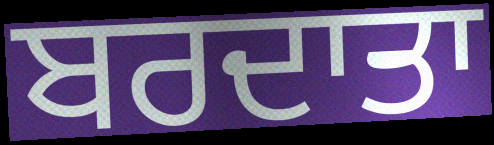
ਬਰਦਾਤਾ